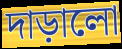
দাড়ালো